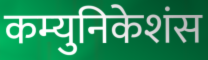
कम्‍युनिकेशंस